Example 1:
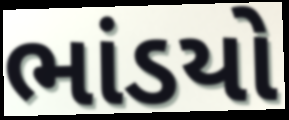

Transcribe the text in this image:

ભાંડયો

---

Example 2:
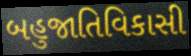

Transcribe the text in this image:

બહુજાતિવિકાસી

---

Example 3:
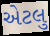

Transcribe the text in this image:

એટલુ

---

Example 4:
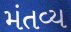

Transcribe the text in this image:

મંતવ્ય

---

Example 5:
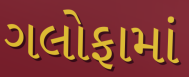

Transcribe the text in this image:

ગલોફામાં